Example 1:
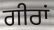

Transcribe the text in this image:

ਗੀਰਾਂ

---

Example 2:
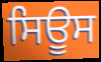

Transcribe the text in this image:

ਸਿਊਸ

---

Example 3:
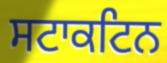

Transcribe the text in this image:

ਸਟਾਕਟਿਨ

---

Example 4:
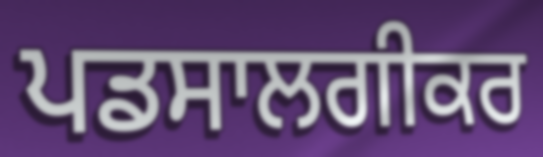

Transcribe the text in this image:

ਪਡਸਾਲਗੀਕਰ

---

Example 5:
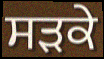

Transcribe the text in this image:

ਸਡ਼ਕੇ